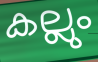
കല്ലും